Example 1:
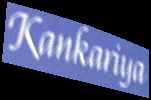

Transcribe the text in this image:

Kankariya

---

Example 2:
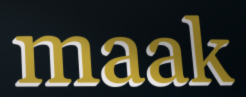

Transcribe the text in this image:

maak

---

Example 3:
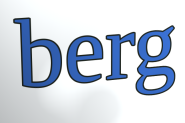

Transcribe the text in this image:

berg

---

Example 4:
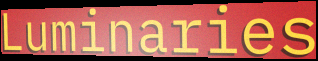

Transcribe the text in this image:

Luminaries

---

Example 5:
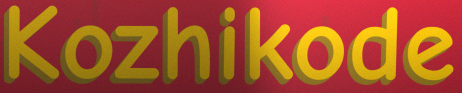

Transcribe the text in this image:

Kozhikode